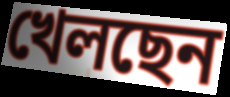
খেলছেন